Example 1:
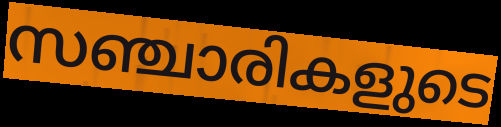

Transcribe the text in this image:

സഞ്ചാരികളുടെ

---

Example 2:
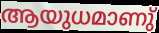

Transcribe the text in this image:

ആയുധമാണു്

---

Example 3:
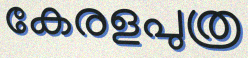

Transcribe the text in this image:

കേരളപുത്ര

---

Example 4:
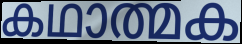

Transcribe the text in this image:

കഥാത്മക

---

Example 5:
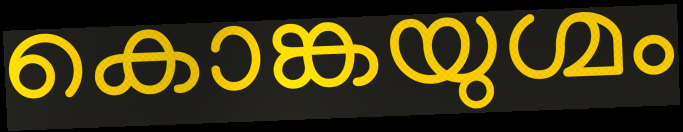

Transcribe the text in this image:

കൊങ്കയുഗ്മം